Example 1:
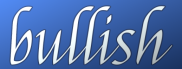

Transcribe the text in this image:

bullish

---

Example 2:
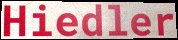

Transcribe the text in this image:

Hiedler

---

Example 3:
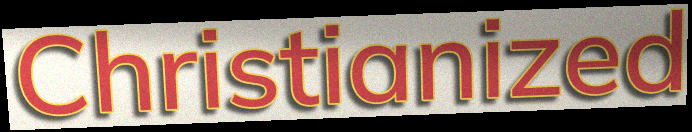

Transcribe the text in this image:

Christianized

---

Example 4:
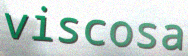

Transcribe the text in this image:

viscosa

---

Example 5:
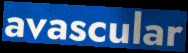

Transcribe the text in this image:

avascular